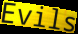
Evils